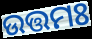
ଉତ୍ତମଃ